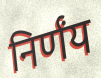
निर्णंय